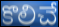
కొలిచే